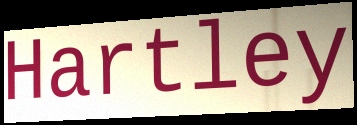
Hartley